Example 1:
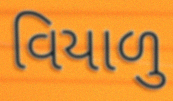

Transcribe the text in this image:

વિયાળુ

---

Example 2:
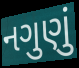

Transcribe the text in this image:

નગુણું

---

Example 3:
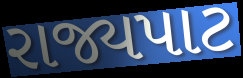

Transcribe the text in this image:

રાજ્યપાટ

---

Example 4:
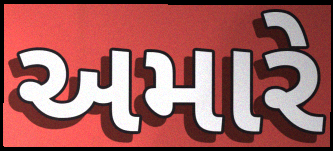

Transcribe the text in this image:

અમારે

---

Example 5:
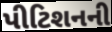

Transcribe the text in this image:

પીટિશનની